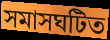
সমাসঘটিত